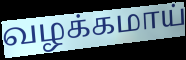
வழக்கமாய்